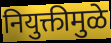
नियुक्तीमुळे